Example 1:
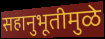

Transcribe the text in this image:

सहानुभूतीमुळे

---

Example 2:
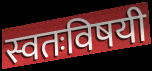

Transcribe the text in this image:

स्वतःविषयी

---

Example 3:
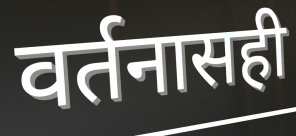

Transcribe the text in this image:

वर्तनासही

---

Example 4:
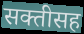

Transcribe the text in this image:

सक्तीसह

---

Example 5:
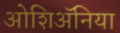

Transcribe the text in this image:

ओशिॲनिया